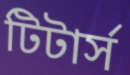
টিটার্স